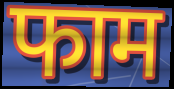
फाम